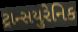
ટ્રાન્સયુરેનિક